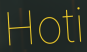
Hoti